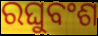
ରଘୁବଂଶ